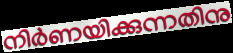
നിർണയിക്കുന്നതിനു